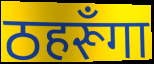
ठहरूँगा